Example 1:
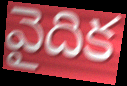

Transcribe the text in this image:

వైదిక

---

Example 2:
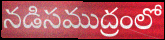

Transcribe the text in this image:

నడిసముద్రంలో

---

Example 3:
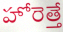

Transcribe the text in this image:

హోరెత్తే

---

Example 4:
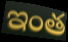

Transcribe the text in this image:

ఇంత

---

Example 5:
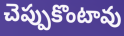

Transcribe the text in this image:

చెప్పుకొంటావు